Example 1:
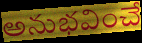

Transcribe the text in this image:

అనుభవించే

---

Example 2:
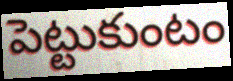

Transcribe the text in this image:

పెట్టుకుంటం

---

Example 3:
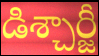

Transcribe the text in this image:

డిశ్చార్జీ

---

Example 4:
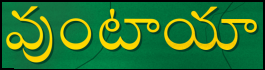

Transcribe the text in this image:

వుంటాయా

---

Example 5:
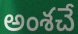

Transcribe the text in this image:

అంశచే